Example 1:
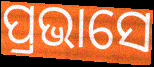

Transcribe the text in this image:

ପ୍ରଭାସେ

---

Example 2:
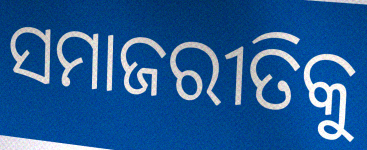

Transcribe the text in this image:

ସମାଜରୀତିକୁ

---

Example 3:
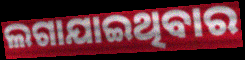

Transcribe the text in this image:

ଲଗାଯାଇଥିବାର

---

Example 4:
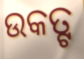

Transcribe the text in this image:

ଉକତ୍ଟ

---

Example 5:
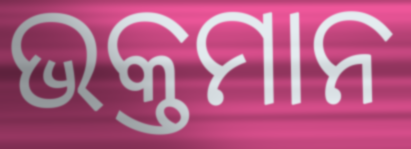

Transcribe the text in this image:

ଭକ୍ତମାନ